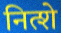
नित्शे